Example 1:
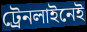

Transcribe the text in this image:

ট্রেনলাইনেই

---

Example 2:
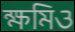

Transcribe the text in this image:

ক্ষমিও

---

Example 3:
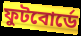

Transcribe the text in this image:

ফুটবোর্ডে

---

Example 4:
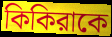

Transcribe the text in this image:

কিকিরাকে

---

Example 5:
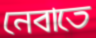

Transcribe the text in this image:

নেবাতে